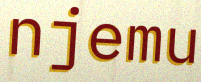
njemu